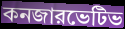
কনজারভেটিভ